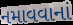
નમાવવાનાં